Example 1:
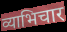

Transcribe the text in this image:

व्याभिचार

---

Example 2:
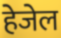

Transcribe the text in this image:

हेजेल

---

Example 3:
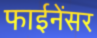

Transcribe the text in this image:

फाईनेंसर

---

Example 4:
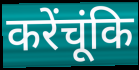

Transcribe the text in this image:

करेंचूंकि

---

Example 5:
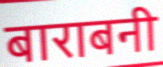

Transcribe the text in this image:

बाराबनी